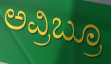
ಅವ್ರಿಬ್ರೂ